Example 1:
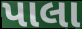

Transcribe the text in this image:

પાલા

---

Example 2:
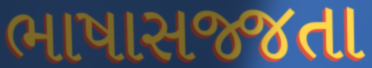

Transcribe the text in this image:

ભાષાસજ્જતા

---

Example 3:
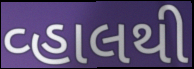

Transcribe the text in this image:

વ્હાલથી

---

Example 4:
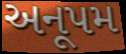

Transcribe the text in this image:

અનૂપમ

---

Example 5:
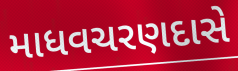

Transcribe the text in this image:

માધવચરણદાસે